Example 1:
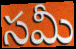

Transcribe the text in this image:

సమీ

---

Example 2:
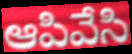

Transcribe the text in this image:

ఆపివేసి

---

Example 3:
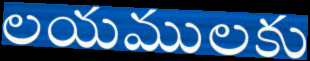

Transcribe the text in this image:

లయములకు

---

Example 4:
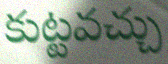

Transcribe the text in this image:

కుట్టవచ్చు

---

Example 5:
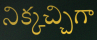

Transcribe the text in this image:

నిక్కచ్చిగా